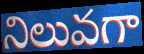
నిలువగా